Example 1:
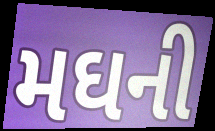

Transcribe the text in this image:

મઘની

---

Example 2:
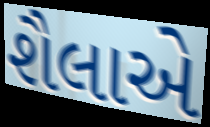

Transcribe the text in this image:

શૈલાએ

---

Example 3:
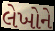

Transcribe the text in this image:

લેખોને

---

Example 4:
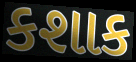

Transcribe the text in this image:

કશાક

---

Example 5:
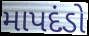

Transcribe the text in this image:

માપદંડો